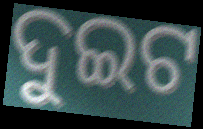
ଦୁଇଟ